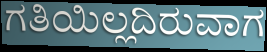
ಗತಿಯಿಲ್ಲದಿರುವಾಗ